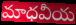
మాధవీయ